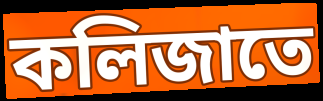
কলিজাতে